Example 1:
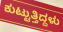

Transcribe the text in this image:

ಕುಟ್ಟುತ್ತಿದ್ದಳು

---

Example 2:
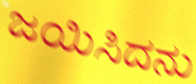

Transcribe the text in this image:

ಜಯಿಸಿದನು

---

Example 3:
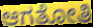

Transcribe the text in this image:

ಆಗತೋತಿ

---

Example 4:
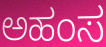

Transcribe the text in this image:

ಅಹಂಸ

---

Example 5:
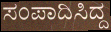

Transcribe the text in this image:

ಸಂಪಾದಿಸಿದ್ದ